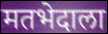
मतभेदाला